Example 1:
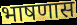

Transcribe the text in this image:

भाषणास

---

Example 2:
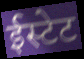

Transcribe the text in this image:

ईस्टेट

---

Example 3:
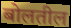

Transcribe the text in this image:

बोलतील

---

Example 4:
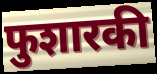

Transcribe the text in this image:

फुशारकी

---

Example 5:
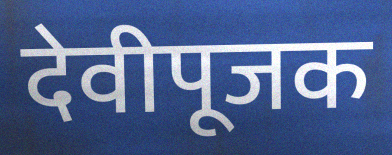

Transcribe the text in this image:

देवीपूजक